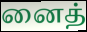
னைத்